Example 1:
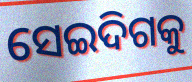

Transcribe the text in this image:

ସେଇଦିଗକୁ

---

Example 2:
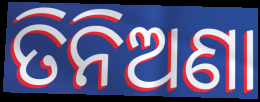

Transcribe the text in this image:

ତିନିଅଣା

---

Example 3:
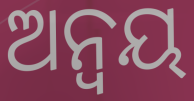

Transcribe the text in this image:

ଅନ୍ଵୟ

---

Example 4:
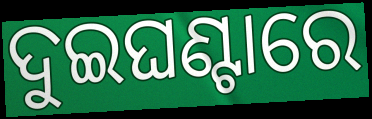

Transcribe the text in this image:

ଦୁଇଘଣ୍ଟାରେ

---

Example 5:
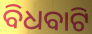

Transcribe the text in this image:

ବିଧବାଟି